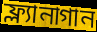
ফ্ল্যানাগান